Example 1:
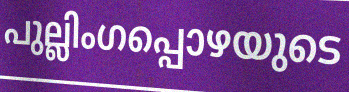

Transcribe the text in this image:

പുല്ലിംഗപ്പൊഴയുടെ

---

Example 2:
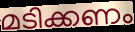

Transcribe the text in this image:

മടിക്കണം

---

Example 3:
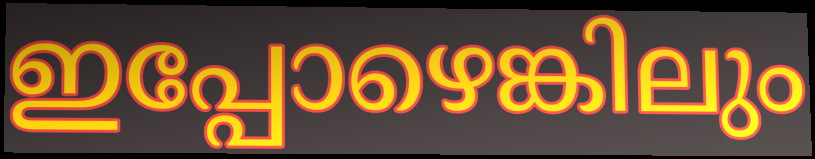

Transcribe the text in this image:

ഇപ്പോഴെങ്കിലും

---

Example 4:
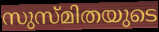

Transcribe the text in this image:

സുസ്മിതയുടെ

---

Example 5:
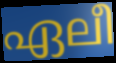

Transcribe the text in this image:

ഏലീ